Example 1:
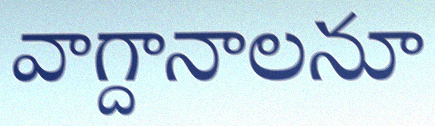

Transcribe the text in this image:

వాగ్దానాలనూ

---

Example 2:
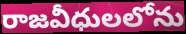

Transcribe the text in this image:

రాజవీధులలోను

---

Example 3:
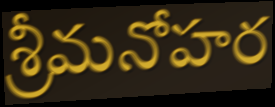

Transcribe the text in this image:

శ్రీమనోహర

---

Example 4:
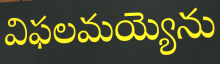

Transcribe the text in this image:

విఫలమయ్యెను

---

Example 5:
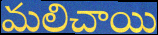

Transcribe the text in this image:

మలిచాయి